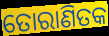
ତୋରାଣିତକ